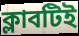
ক্লাবটিই